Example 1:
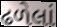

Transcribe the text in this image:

ઢળેલાં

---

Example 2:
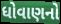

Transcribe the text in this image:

ધોવાણનો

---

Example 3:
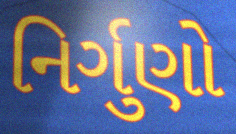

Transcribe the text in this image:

નિર્ગુણો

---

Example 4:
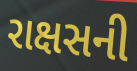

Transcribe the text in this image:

રાક્ષસની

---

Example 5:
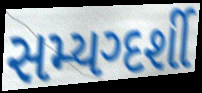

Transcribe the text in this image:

સમ્યગ્દર્શી